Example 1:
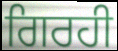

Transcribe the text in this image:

ਗਿਰਹੀ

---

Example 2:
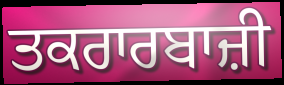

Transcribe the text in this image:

ਤਕਰਾਰਬਾਜ਼ੀ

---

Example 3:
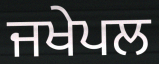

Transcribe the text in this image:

ਜਖੇਪਲ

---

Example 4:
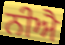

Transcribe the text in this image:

ਨੀਐ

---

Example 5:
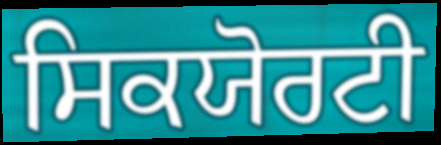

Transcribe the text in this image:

ਸਿਕਯੋਰਟੀ